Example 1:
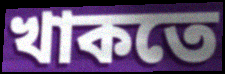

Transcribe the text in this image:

খাকতে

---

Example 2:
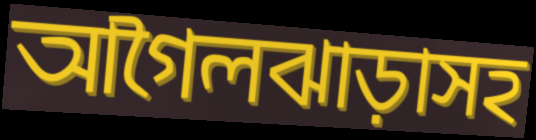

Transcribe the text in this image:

আগৈলঝাড়াসহ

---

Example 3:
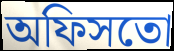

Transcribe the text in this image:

অফিসতো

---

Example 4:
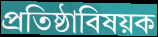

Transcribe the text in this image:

প্রতিষ্ঠাবিষয়ক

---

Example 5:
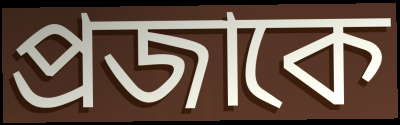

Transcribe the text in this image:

প্রজাকে